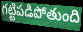
గట్టిపడిపోతుంది